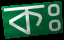
কঃ